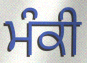
ਮੰਕੀ